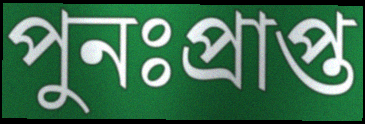
পুনঃপ্রাপ্ত